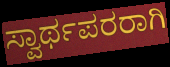
ಸ್ವಾರ್ಥಪರರಾಗಿ